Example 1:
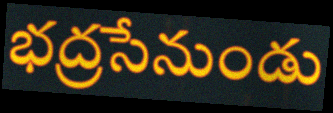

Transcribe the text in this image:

భద్రసేనుండు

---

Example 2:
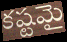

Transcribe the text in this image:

కష్టమై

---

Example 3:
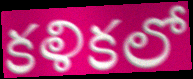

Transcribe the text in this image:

కళికలో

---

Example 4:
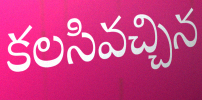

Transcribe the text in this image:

కలసివచ్చిన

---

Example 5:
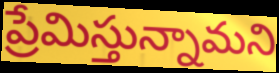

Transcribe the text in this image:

ప్రేమిస్తున్నామని